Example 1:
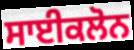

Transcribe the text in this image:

ਸਾਈਕਲੋਨ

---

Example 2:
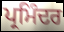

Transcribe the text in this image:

ਪ੍ਰਮਿੰਦਰ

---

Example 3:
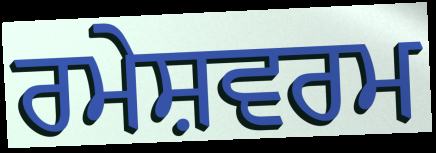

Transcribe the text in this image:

ਰਮੇਸ਼ਵਰਮ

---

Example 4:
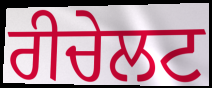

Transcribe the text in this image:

ਰੀਚੇਲਟ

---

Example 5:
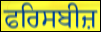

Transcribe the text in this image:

ਫਰਿਸਬੀਜ਼